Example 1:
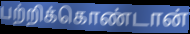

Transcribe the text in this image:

பற்றிக்கொண்டான்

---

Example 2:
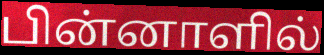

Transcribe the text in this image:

பின்னாளில்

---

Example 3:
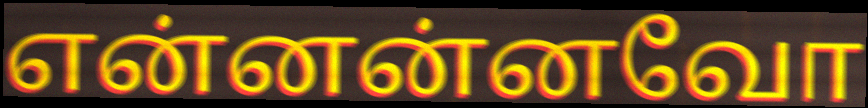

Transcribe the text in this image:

என்னன்னவோ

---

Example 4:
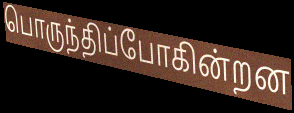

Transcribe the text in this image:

பொருந்திப்போகின்றன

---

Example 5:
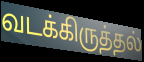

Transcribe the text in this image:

வடக்கிருத்தல்